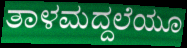
ತಾಳಮದ್ದಲೆಯೂ